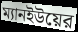
ম্যানইউয়ের